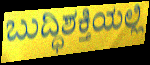
ಬುದ್ಧಿಶಕ್ತಿಯಲ್ಲಿ